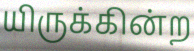
யிருக்கின்ற